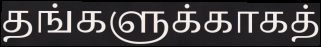
தங்களுக்காகத்